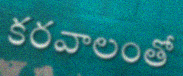
కరవాలంతో